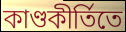
কাণ্ডকীর্তিতে